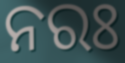
ନରଃ